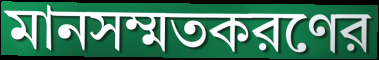
মানসম্মতকরণের